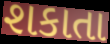
શકાતા